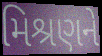
મિશ્રણને